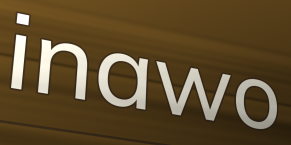
inawo